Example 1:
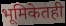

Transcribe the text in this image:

भूमिकेतही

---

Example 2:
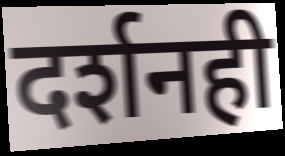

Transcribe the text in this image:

दर्शनही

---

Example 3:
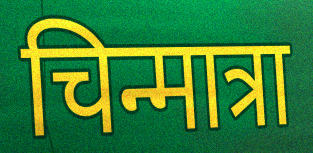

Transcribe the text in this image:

चिन्मात्रा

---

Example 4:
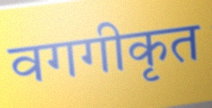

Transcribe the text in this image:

वगगीकृत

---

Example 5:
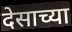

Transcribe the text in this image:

देसाच्या